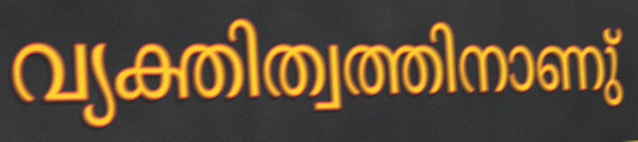
വ്യക്തിത്വത്തിനാണു്